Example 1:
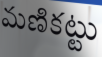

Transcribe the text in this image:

మణికట్టు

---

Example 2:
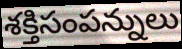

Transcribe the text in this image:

శక్తిసంపన్నులు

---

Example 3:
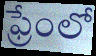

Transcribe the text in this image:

ఫ్రేంలో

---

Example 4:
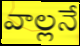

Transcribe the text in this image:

వాల్లనే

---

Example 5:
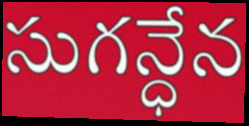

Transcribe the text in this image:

సుగన్ధేన